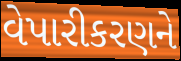
વેપારીકરણને